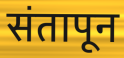
संतापून